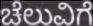
ಚೆಲುವಿಗೆ